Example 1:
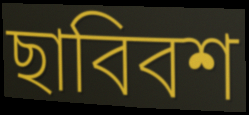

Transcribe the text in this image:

ছাবিবশ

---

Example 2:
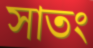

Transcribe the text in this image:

সাতং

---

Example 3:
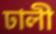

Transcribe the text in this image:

ঢালী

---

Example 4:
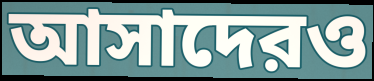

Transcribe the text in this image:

আসাদেরও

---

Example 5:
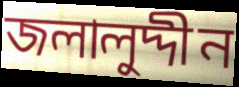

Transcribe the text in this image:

জলালুদ্দীন